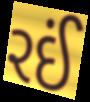
રઈં